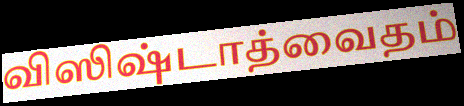
விஸிஷ்டாத்வைதம்